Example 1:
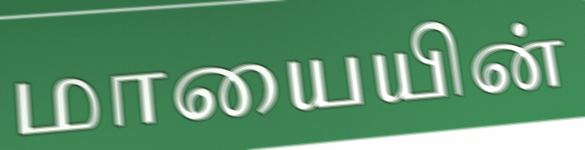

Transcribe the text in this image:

மாயையின்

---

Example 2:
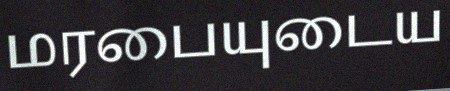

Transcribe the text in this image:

மரபையுடைய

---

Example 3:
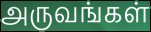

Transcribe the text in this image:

அருவங்கள்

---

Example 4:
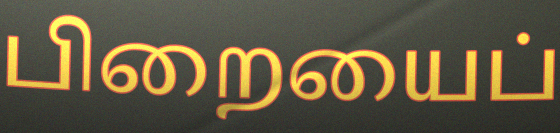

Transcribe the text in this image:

பிறையைப்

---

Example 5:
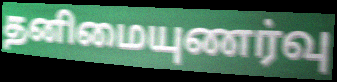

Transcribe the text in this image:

தனிமையுணர்வு